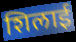
शिलाई